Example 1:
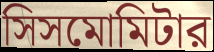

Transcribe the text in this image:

সিসমোমিটার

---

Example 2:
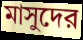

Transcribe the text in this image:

মাসুদের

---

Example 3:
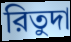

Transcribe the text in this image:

রিতুদা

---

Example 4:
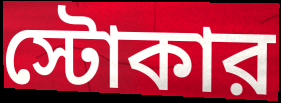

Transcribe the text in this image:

স্টোকার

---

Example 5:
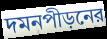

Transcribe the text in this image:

দমনপীড়নের